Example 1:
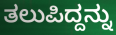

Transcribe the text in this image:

ತಲುಪಿದ್ದನ್ನು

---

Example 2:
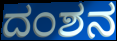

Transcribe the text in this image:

ದಂಶನ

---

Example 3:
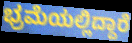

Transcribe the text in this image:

ಭ್ರಮೆಯಲ್ಲಿದ್ದಾರೆ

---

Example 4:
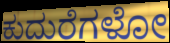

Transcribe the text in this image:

ಕುದುರೆಗಳೋ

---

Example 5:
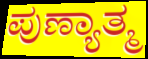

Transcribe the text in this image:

ಪುಣ್ಯಾತ್ಮ